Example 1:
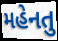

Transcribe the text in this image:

મહેનતુ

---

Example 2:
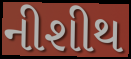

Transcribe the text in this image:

નીશીથ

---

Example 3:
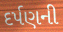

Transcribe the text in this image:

દર્પણની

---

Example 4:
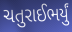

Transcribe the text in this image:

ચતુરાઈભર્યું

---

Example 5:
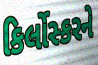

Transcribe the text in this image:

કિર્લોસ્કરને